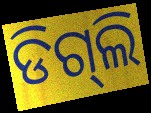
ଡିଗ୍‌ଲି